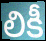
లికీ